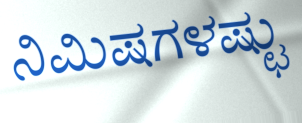
ನಿಮಿಷಗಳಷ್ಟು